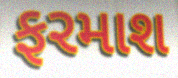
ફરમાશ